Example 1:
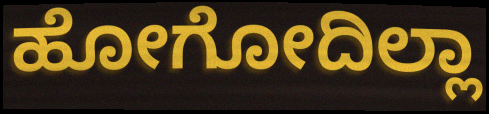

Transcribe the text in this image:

ಹೋಗೋದಿಲ್ಲಾ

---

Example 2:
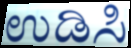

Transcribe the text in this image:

ಉಡಿಸಿ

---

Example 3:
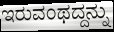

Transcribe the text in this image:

ಇರುವಂಥದ್ದನ್ನು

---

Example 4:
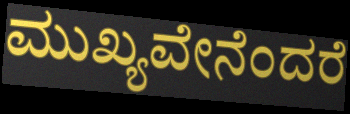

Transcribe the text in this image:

ಮುಖ್ಯವೇನೆಂದರೆ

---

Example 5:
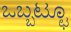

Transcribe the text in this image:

ಒಬ್ಬಟ್ಟೂ